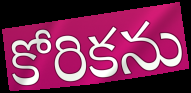
కోరికను